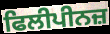
ਫਿਲੀਪੀਨਜ਼